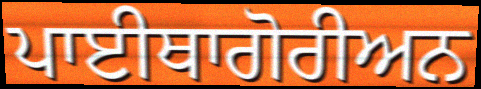
ਪਾਈਥਾਗੋਰੀਅਨ